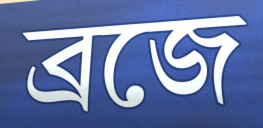
ব্রজে